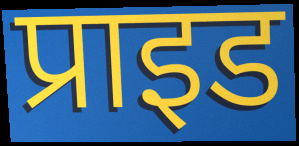
प्राइड